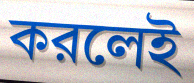
করলেই